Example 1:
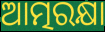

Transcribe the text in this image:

ଆତ୍ମରକ୍ଷା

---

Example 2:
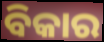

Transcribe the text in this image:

ବିକାର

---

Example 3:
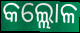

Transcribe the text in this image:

କଲ୍ଲୋଳ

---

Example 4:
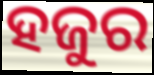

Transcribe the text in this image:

ହଜୁର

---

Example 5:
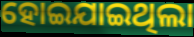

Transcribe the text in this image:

ହୋଇଯାଇଥିଲା